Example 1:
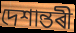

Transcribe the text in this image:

দেশান্তৰী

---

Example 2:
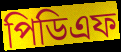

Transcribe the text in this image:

পিডিএফ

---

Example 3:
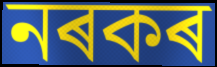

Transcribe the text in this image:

নৰকৰ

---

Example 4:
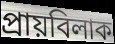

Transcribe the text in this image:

প্ৰায়বিলাক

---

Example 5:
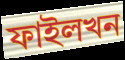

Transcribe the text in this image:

ফাইলখন